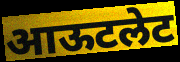
आऊटलेट